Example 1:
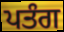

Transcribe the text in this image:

ਪਤੰਗ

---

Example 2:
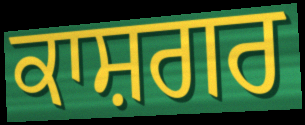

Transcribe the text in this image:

ਕਾਸ਼ਗਰ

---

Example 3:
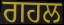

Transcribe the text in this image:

ਗਹਲ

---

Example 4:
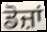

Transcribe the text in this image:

ਡੋਜ਼ਾਂ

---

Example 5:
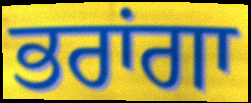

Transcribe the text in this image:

ਭਰਾਂਗਾ